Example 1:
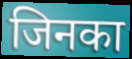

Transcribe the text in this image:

जिनका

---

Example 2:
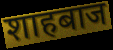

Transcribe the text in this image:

शाहबाज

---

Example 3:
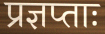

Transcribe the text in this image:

प्रज्ञप्ताः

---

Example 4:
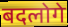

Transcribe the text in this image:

बदलोगे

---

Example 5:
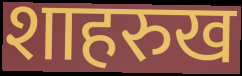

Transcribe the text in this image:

शाहरुख